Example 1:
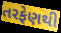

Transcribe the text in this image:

તરફેણથી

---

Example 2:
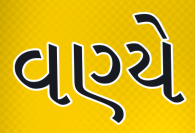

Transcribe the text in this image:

વણ્યે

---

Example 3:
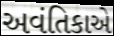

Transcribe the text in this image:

અવંતિકાએ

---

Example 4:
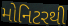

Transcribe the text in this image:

મોનિટરથી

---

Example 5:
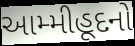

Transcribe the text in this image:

આમ્મીહૂદનો